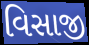
વિસાજી